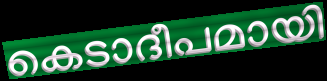
കെടാദീപമായി